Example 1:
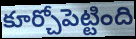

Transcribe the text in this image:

కూర్చోపెట్టింది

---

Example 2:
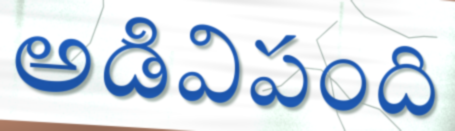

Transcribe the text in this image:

అడివిపంది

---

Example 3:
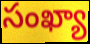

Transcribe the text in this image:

సంఖ్యా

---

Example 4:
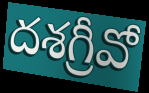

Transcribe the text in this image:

దశగ్రీవో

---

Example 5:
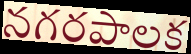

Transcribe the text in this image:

నగరపాలక